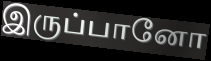
இருப்பானோ